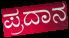
ಪ್ರದಾನ